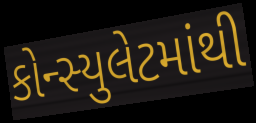
કોન્સ્યુલેટમાંથી